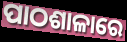
ପାଠଶାଳାରେ